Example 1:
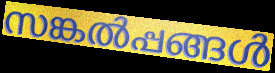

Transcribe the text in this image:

സങ്കൽപ്പങ്ങൾ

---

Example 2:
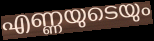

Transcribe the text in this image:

എണ്ണയുടെയും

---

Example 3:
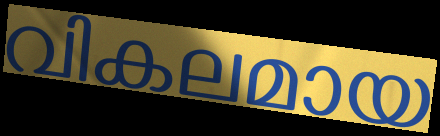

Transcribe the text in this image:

വികലമായ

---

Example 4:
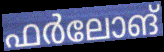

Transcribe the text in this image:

ഫർലോങ്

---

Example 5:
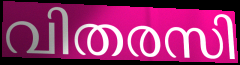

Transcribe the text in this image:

വിതരസി